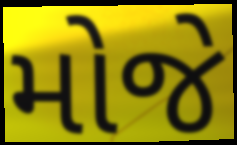
મોજે